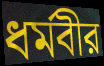
ধর্মবীর